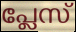
പ്ലേസ്